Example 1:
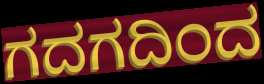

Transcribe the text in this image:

ಗದಗದಿಂದ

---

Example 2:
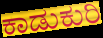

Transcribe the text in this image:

ಕಾಡುಕುರಿ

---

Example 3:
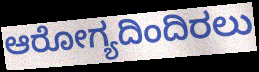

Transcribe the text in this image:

ಆರೋಗ್ಯದಿಂದಿರಲು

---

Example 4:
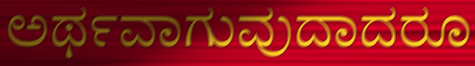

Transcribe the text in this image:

ಅರ್ಥವಾಗುವುದಾದರೂ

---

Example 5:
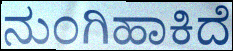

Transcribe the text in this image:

ನುಂಗಿಹಾಕಿದೆ